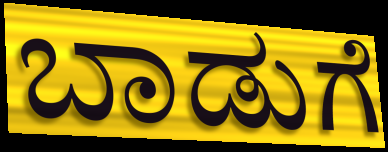
ಬಾಡುಗೆ